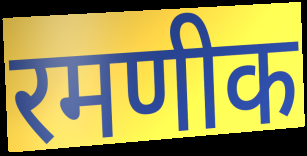
रमणीक